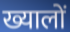
ख्यालों